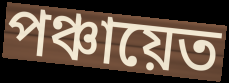
পঞ্চায়েত